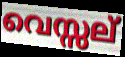
വെസ്സല്